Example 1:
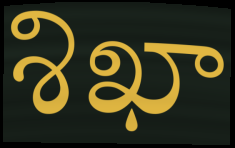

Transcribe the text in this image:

శిఖా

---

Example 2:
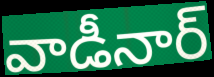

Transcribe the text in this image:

వాడీనార్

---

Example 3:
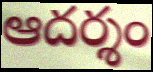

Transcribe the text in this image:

ఆదర్శం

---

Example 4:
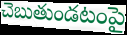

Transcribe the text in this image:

చెబుతుండటంపై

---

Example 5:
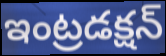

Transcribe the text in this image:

ఇంట్రడక్షన్